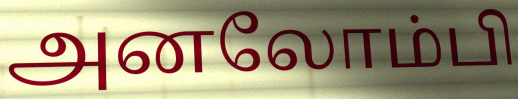
அனலோம்பி